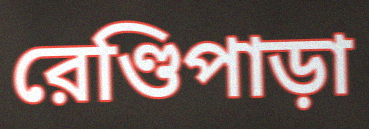
রেণ্ডিপাড়া